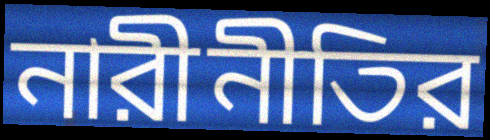
নারীনীতির